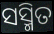
ସସ୍ମିତ